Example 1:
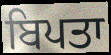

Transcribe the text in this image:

ਬਿਪਤਾ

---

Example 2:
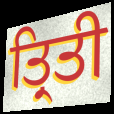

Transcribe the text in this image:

ਤ੍ਰਿਤੀ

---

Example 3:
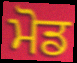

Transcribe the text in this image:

ਮੋਡ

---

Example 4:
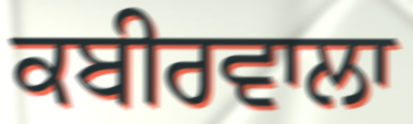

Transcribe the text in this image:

ਕਬੀਰਵਾਲਾ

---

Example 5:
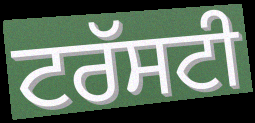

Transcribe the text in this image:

ਟਰੱਸਟੀ